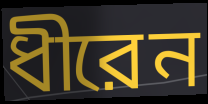
ধীরেন